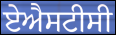
ਏਐਸਟੀਸੀ